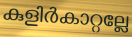
കുളിർകാറ്റല്ലേ